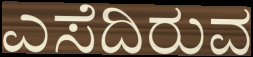
ಎಸೆದಿರುವ